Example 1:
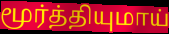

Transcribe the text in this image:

மூர்த்தியுமாய்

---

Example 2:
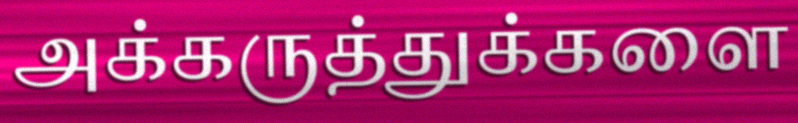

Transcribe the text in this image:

அக்கருத்துக்களை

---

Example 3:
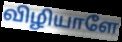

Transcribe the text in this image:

விழியாளே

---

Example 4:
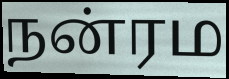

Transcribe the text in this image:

நன்ரம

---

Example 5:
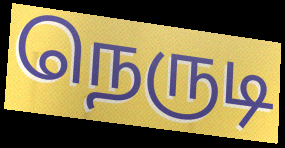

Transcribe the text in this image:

நெருடி